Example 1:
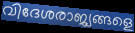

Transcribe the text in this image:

വിദേശരാജ്യങ്ങളെ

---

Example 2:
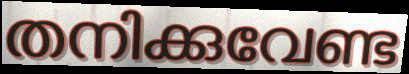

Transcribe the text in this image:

തനിക്കുവേണ്ട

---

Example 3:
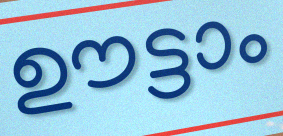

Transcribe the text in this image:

ഊട്ടാം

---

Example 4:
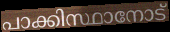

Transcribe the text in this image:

പാക്കിസ്ഥാനോട്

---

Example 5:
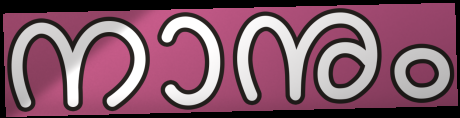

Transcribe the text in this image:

നാനും